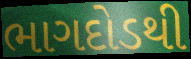
ભાગદોડથી